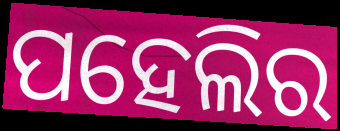
ପହେଲିର